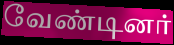
வேண்டினர்